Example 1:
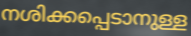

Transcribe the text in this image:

നശിക്കപ്പെടാനുള്ള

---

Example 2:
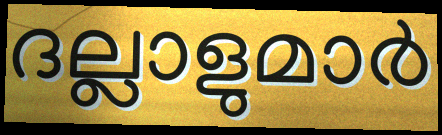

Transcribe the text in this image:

ദല്ലാളുമാർ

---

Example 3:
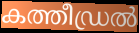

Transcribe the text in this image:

കത്തീഡ്രൽ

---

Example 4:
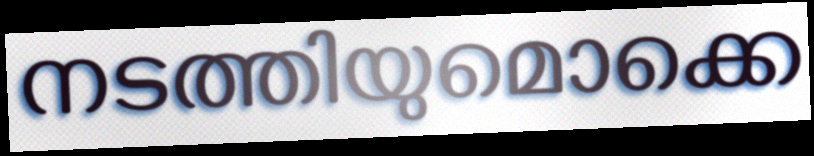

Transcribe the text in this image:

നടത്തിയുമൊക്കെ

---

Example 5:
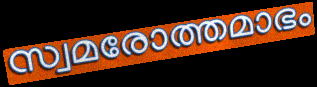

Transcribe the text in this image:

സ്വമരോത്തമാഭം